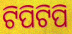
ଟିପିଟିପି